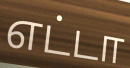
எட்டா